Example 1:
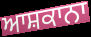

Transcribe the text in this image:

ਆਸ਼ਕਾਨਾ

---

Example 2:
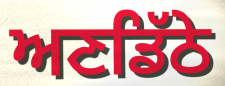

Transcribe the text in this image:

ਅਣਡਿੱਠੇ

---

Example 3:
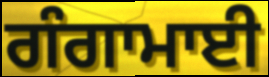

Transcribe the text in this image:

ਗੰਗਾਮਾਈ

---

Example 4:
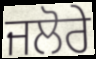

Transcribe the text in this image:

ਜਲੋਰੇ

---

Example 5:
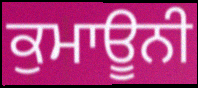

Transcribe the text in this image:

ਕੁਮਾਊਨੀ